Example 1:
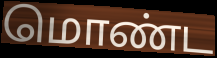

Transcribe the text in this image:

மொண்ட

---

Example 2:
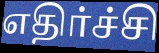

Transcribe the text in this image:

எதிர்ச்சி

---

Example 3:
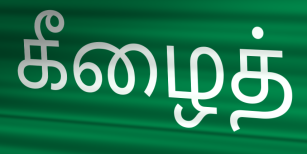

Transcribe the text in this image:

கீழைத்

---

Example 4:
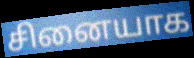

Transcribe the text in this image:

சினையாக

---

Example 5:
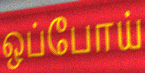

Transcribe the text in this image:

ஒப்போய்